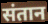
संतान